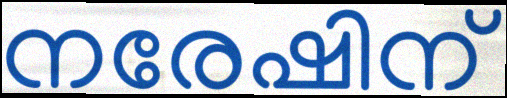
നരേഷിന്